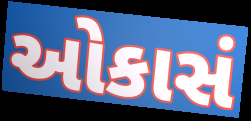
ઓકાસં